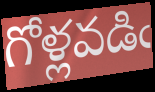
గోళ్లవడిఁ